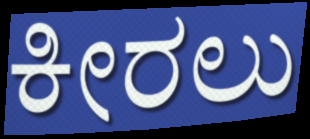
ಕೀರಲು